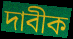
দাবীক